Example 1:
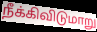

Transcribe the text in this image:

நீக்கிவிடுமாறு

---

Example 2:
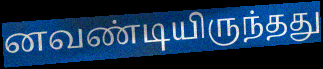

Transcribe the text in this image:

னவண்டியிருந்தது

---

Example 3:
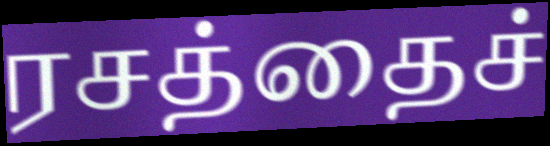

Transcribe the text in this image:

ரசத்தைச்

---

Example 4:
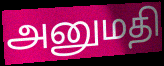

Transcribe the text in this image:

அனுமதி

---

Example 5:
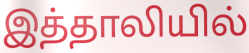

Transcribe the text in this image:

இத்தாலியில்